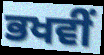
ਭਖਵੀਂ